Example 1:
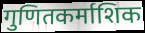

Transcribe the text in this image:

गुणितकर्माशिक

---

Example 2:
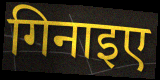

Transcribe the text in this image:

गिनाइए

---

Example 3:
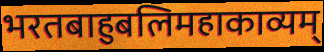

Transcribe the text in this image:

भरतबाहुबलिमहाकाव्यम्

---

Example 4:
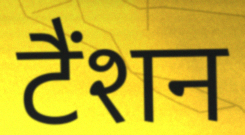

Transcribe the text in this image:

टैंशन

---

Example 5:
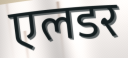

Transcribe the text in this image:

एलडर